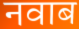
नवाब